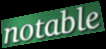
notable